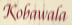
Kobawala